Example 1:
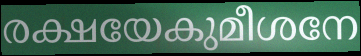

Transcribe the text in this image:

രക്ഷയേകുമീശനേ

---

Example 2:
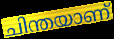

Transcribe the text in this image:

ചിന്തയാണ്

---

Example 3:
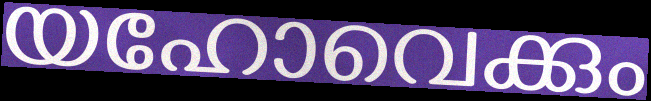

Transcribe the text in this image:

യഹോവെക്കും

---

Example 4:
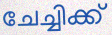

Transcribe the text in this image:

ചേച്ചിക്ക്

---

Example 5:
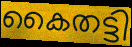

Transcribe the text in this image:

കൈതട്ടി